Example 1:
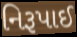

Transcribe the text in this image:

નિરૂપાઈ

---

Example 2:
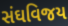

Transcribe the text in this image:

સંઘવિજય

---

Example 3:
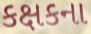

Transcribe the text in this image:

કક્ષકના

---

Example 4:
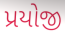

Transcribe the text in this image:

પ્રયોજી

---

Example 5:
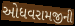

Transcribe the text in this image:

ઓધવરામજીની